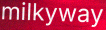
milkyway